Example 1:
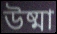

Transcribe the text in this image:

উষ্মা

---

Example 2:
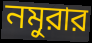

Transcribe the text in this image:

নমুরার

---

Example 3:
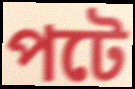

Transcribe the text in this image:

পটে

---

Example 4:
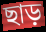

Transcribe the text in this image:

ছাড়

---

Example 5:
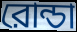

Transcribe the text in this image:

রোন্ডা